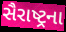
સૈરાષ્ટ્રના